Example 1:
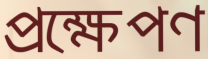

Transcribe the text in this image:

প্ৰক্ষেপণ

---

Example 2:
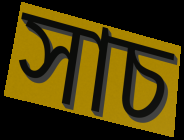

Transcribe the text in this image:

সাচ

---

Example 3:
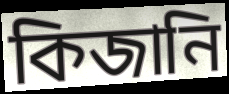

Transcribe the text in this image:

কিজানি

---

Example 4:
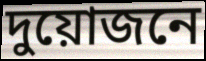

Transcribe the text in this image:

দুয়োজনে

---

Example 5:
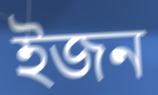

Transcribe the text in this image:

ইজন